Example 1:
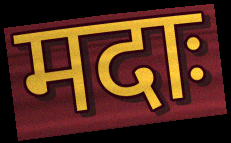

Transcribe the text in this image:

मदाः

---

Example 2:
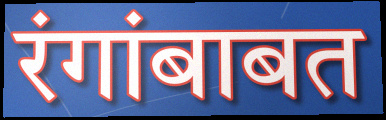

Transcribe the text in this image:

रंगांबाबत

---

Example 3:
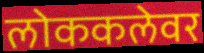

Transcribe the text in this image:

लोककलेवर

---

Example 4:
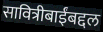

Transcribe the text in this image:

सावित्रीबाईंबद्दल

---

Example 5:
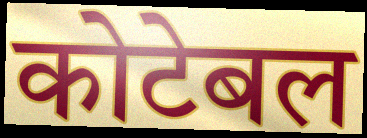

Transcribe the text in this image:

कोटेबल